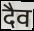
दैव